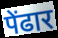
पेंढार